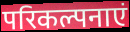
परिकल्पनाएं